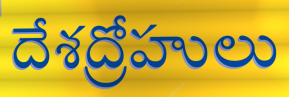
దేశద్రోహులు